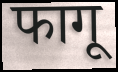
फागू